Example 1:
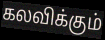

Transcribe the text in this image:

கலவிக்கும்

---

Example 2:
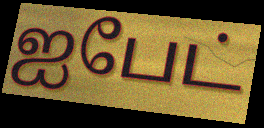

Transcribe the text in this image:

ஐபேட்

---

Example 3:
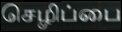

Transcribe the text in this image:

செழிப்பை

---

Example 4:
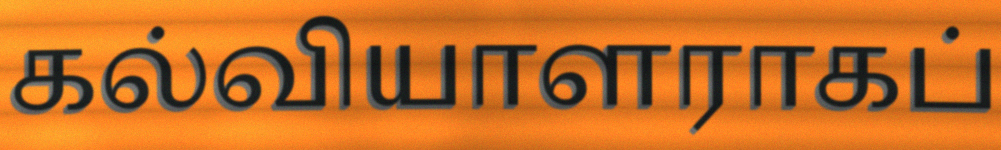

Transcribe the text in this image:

கல்வியாளராகப்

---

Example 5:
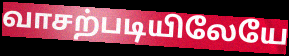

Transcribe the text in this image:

வாசற்படியிலேயே